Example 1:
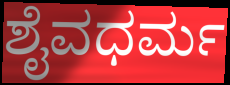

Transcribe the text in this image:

ಶೈವಧರ್ಮ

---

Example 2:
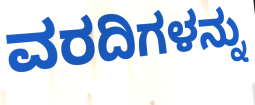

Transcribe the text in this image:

ವರದಿಗಳನ್ನು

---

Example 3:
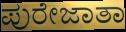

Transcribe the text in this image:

ಪುರೇಜಾತಾ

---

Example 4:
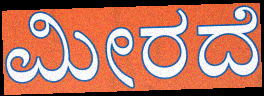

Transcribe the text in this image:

ಮೀರದೆ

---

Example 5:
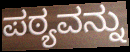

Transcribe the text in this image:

ಪಠ್ಯವನ್ನು